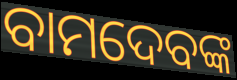
ବାମଦେବଙ୍କ